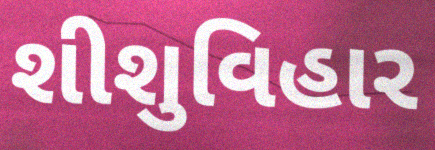
શીશુવિહાર